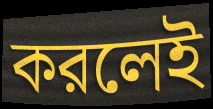
করলেই